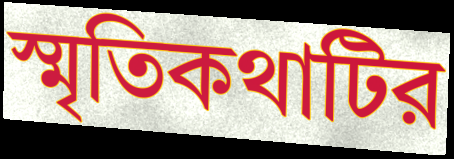
স্মৃতিকথাটির